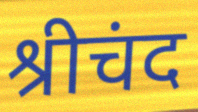
श्रीचंद